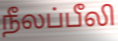
நீலப்பீலி